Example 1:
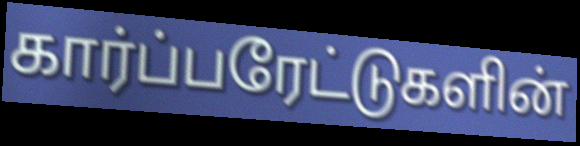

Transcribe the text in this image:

கார்ப்பரேட்டுகளின்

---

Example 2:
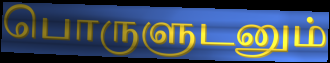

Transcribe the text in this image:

பொருளுடனும்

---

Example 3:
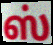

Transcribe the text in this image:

ஸ்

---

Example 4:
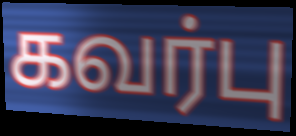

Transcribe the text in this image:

கவர்பு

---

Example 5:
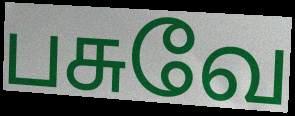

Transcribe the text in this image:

பசுவே